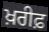
ਖ਼ਰੀਫ਼